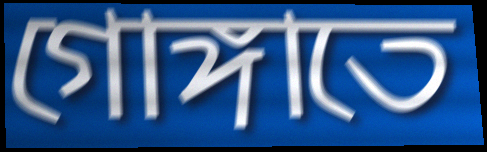
গোঙ্গাতে